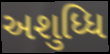
અશુધ્ધિ